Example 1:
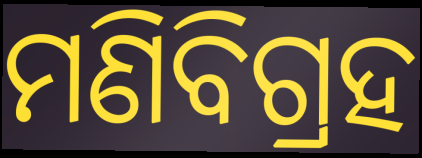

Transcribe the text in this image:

ମଣିବିଗ୍ରହ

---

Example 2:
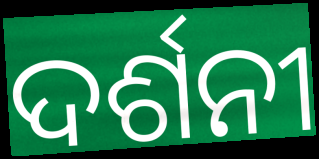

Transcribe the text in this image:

ଦର୍ଶନୀ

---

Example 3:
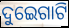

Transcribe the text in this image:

ଦୁଇେଗାଟି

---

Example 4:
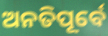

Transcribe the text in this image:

ଅନତିପୂର୍ବେ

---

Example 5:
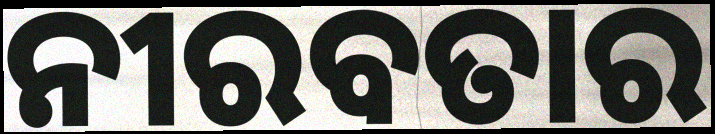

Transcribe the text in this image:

ନୀରବତାର